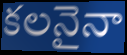
కలనైనా